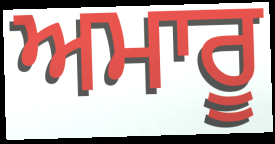
ਅਮਾਰੂ